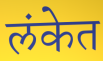
लंकेत